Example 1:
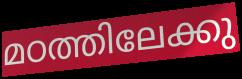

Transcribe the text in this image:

മഠത്തിലേക്കു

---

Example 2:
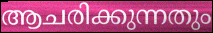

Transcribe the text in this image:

ആചരിക്കുന്നതും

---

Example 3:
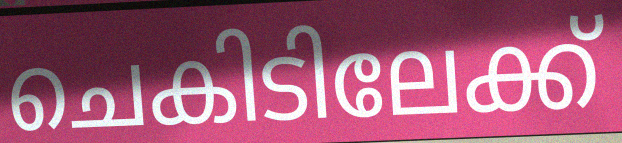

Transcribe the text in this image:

ചെകിടിലേക്ക്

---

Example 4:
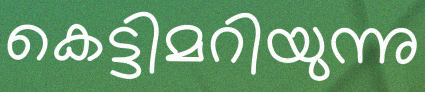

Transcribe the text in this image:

കെട്ടിമറിയുന്നു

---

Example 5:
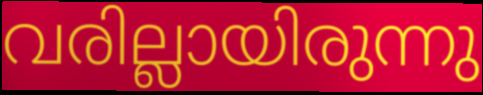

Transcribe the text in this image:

വരില്ലായിരുന്നു